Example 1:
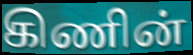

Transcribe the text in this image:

கிணின்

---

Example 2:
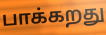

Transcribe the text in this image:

பாக்கறது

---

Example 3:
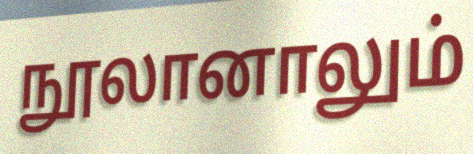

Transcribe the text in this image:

நூலானாலும்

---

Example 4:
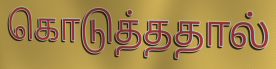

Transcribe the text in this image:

கொடுத்ததால்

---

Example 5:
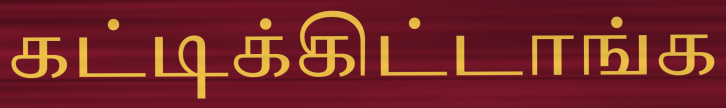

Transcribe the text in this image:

கட்டிக்கிட்டாங்க